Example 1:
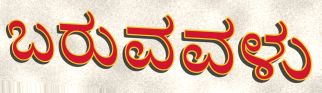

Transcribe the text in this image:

ಬರುವವಳು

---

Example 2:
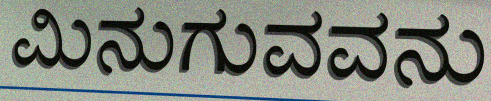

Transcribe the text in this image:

ಮಿನುಗುವವನು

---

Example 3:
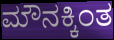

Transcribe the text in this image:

ಮೌನಕ್ಕಿಂತ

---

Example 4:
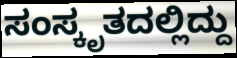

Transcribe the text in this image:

ಸಂಸ್ಕೃತದಲ್ಲಿದ್ದು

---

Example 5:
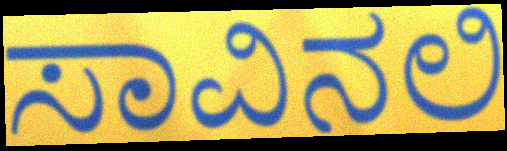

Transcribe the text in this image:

ಸಾವಿನಲಿ